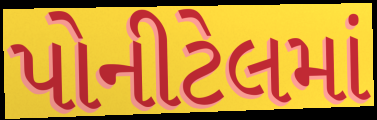
પોનીટેલમાં